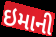
ઇમાની